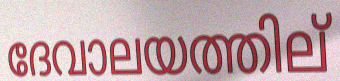
ദേവാലയത്തില്